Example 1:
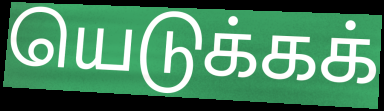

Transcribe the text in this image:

யெடுக்கக்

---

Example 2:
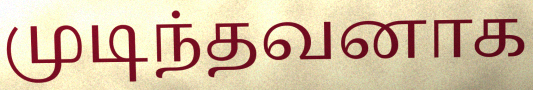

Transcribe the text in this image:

முடிந்தவனாக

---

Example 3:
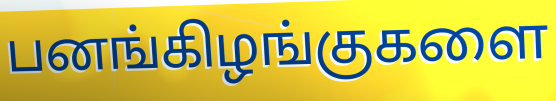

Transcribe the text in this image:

பனங்கிழங்குகளை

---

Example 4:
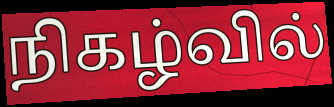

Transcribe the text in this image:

நிகழ்வில்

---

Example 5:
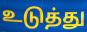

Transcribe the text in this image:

உடுத்து